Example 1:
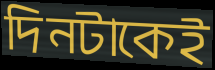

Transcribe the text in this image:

দিনটাকেই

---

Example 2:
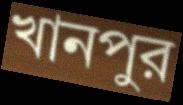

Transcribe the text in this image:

খানপুর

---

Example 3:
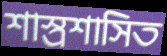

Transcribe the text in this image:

শাস্ত্রশাসিত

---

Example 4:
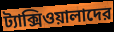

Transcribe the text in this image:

ট্যাক্সিওয়ালাদের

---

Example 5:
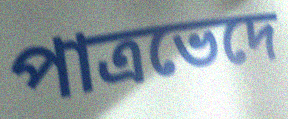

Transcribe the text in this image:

পাত্রভেদে